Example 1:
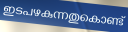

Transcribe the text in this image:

ഇടപഴകുന്നതുകൊണ്ട്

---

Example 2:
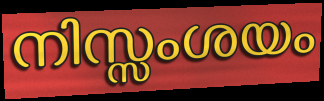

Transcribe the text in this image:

നിസ്സംശയം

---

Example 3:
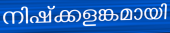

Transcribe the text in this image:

നിഷ്ക്കളങ്കമായി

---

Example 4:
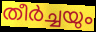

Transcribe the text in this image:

തീർച്ചയും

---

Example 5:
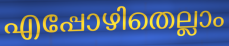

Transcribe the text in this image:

എപ്പോഴിതെല്ലാം